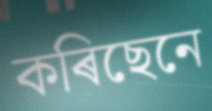
কৰিছেনে